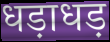
धड़ाधड़